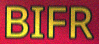
BIFR